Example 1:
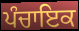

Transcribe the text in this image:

ਪੰਚਾਇਕ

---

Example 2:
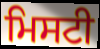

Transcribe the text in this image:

ਮਿਸਟੀ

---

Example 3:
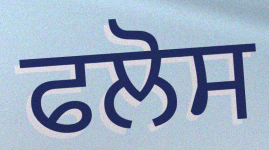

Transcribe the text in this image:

ਫਲੋਸ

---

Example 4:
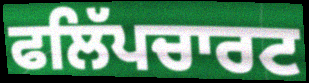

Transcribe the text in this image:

ਫਲਿੱਪਚਾਰਟ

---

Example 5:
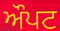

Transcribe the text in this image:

ਔਪਟ